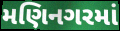
મણિનગરમાં